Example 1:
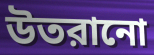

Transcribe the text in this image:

উতরানো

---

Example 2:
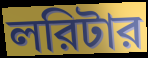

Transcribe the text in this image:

লরিটার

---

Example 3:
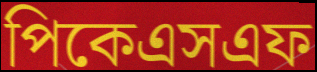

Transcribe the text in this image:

পিকেএসএফ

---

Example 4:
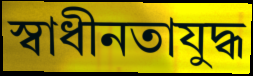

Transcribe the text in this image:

স্বাধীনতাযুদ্ধ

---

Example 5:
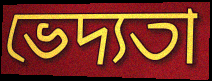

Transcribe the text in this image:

ভেদ্যতা